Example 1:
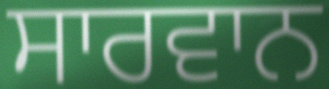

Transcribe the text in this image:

ਸਾਰਵਾਨ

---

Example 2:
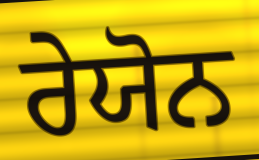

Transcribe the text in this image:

ਰੇਯੋਨ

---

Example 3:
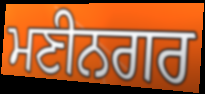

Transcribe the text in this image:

ਮਣੀਨਗਰ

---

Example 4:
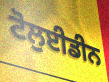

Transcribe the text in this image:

ਟੋਲੁਈਡੀਨ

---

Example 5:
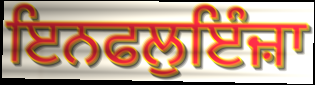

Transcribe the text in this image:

ਇਨਫਲੁਇੰਜ਼ਾ